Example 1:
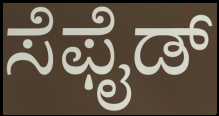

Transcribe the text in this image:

ಸೆಫೈಡ್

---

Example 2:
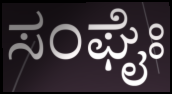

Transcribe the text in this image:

ಸಂಘೈಃ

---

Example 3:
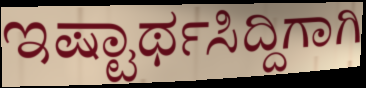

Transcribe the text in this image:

ಇಷ್ಟಾರ್ಥಸಿದ್ದಿಗಾಗಿ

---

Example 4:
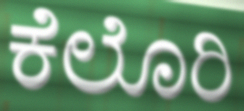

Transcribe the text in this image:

ಕೆಲೊರಿ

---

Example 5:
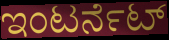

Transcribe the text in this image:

ಇಂಟರ್ನೆಟ್